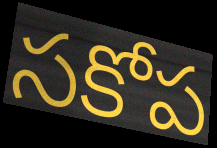
సకోప